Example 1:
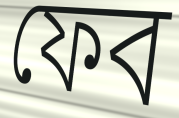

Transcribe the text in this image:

ফেব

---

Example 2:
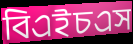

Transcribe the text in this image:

বিএইচএস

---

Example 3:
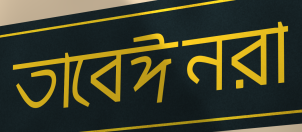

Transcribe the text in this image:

তাবেঈনরা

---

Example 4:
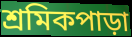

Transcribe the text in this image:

শ্রমিকপাড়া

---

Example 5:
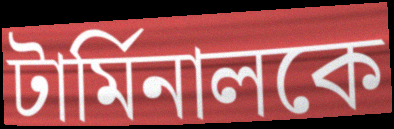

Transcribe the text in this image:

টার্মিনালকে